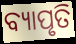
ବ୍ୟାପୃତି